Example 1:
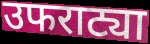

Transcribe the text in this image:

उफराट्या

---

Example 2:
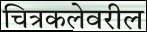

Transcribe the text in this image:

चित्रकलेवरील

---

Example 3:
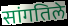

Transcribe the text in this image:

सांगतिले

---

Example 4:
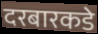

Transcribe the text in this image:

दरबारकडे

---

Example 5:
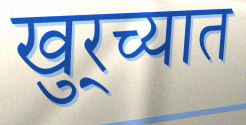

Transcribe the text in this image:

खुर्च्यात